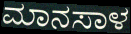
ಮಾನಸಾಳ